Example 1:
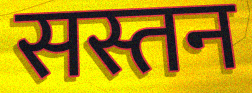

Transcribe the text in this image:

सस्तन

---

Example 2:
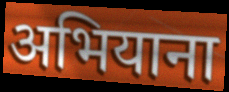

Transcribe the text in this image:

अभियाना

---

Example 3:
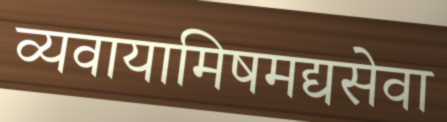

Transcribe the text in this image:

व्यवायामिषमद्यसेवा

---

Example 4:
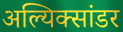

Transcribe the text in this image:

अल्यिक्सांडर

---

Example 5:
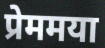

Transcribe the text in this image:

प्रेममया